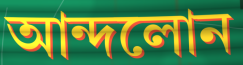
আন্দলোন